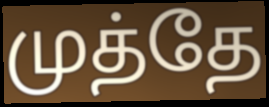
முத்தே